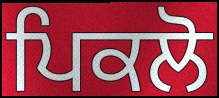
ਪਿਕਲੋ